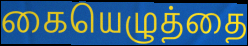
கையெழுத்தை